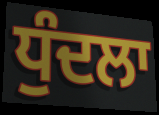
ਧੁੰਦਲਾ